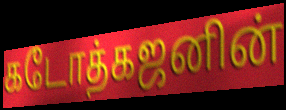
கடோத்கஜனின்